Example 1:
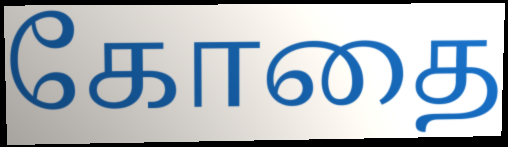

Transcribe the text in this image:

கோதை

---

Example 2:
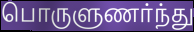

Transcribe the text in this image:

பொருளுணர்ந்து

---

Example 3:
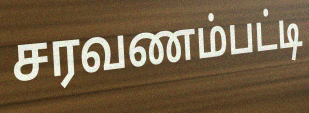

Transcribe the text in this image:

சரவணம்பட்டி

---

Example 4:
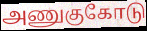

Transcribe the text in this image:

அணுகுகோடு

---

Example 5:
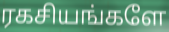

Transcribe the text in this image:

ரகசியங்களே